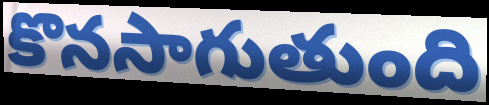
కొనసాగుతుంది